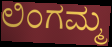
ಲಿಂಗಮ್ಮ